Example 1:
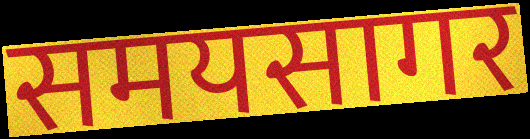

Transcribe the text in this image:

समयसागर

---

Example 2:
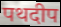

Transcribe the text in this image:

पथदीप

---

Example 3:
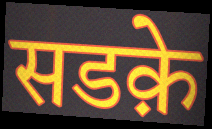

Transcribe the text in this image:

सडक़े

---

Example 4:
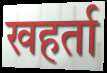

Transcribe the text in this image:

खहर्ता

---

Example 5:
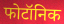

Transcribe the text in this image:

फोटॉनिक